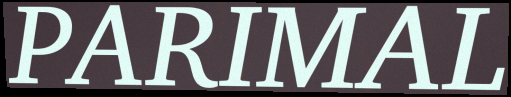
PARIMAL